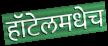
हॉटेलमधेच